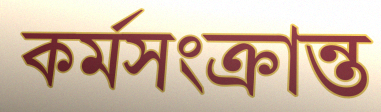
কর্মসংক্রান্ত